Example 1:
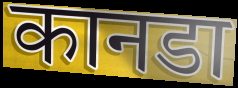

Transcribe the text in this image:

कानडा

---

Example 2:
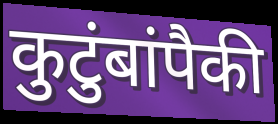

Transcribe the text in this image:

कुटुंबांपैकी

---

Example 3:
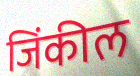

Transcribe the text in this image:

जिंकील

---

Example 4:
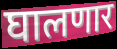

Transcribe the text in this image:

घालणार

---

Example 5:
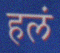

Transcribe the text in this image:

हलं